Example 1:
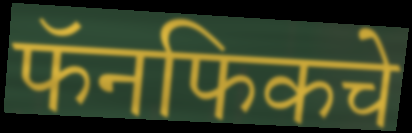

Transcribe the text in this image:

फॅनफिकचे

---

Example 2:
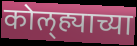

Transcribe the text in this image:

कोल्ह्याच्या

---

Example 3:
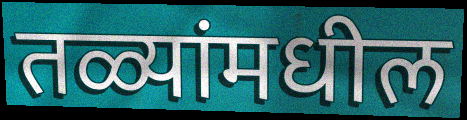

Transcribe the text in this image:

तळ्यांमधील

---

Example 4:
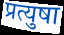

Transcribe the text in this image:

प्रत्युषा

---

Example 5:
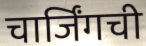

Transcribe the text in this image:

चार्जिंगची